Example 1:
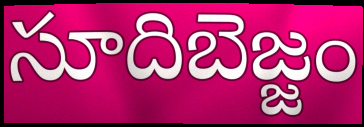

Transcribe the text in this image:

సూదిబెజ్జం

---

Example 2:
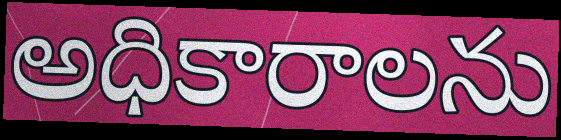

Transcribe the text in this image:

అధికారాలను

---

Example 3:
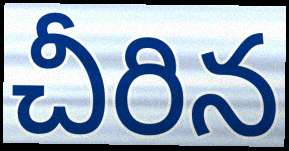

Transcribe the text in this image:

చీరిన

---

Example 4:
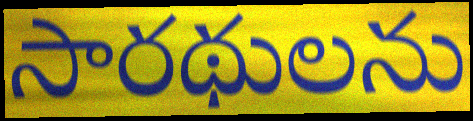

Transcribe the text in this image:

సారథులను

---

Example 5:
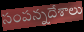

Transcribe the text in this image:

సంపన్నదేశాలు